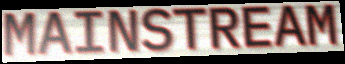
MAINSTREAM